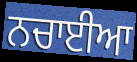
ਨਚਾਈਆ